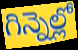
గిన్నెల్లో